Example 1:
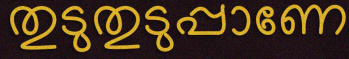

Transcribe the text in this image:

തുടുതുടുപ്പാണേ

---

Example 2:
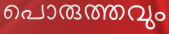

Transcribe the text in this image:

പൊരുത്തവും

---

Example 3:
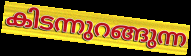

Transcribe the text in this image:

കിടന്നുറങ്ങുന്ന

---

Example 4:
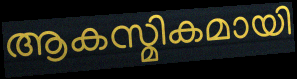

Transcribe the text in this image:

ആകസ്മികമായി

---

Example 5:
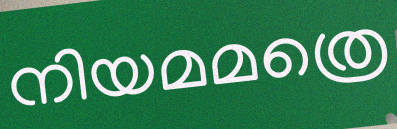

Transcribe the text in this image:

നിയമമത്രെ